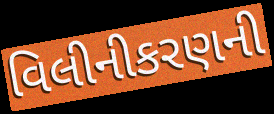
વિલીનીકરણની